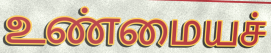
உண்மையச்